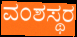
ವಂಶಸ್ಥರ